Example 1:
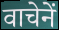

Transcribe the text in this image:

वाचेनें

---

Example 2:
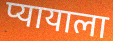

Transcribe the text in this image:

प्यायाला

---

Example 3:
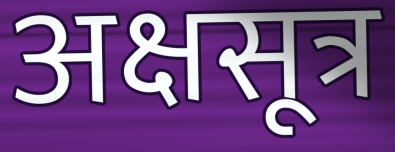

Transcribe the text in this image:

अक्षसूत्र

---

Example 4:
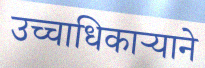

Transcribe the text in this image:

उच्चाधिकाऱ्याने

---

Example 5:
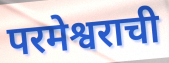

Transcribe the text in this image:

परमेश्वराची